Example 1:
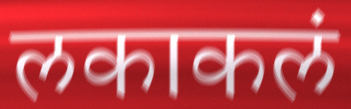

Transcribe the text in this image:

लकाकलं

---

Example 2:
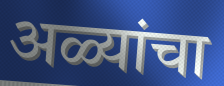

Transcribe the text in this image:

अळ्यांचा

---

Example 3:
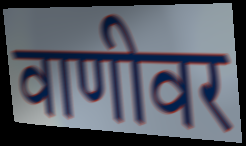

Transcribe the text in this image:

वाणीवर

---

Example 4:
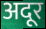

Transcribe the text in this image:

अदूर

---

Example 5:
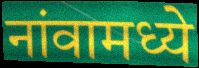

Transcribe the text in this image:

नांवामध्ये